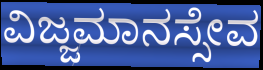
ವಿಜ್ಜಮಾನಸ್ಸೇವ